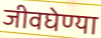
जीवघेण्या